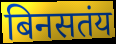
बिनसतंय